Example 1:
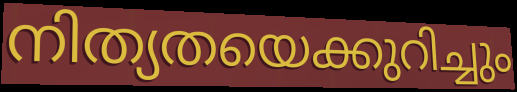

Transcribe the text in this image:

നിത്യതയെക്കുറിച്ചും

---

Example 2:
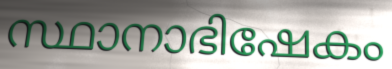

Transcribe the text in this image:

സ്ഥാനാഭിഷേകം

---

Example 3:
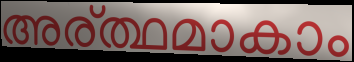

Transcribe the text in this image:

അര്ത്ഥമാകാം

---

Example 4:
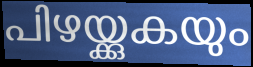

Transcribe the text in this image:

പിഴയ്ക്കുകയും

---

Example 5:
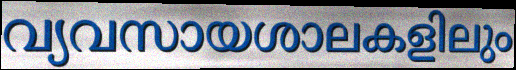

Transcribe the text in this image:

വ്യവസായശാലകളിലും